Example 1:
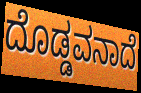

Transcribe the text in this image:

ದೊಡ್ಡವನಾದೆ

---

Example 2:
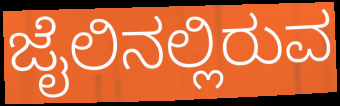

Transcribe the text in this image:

ಜೈಲಿನಲ್ಲಿರುವ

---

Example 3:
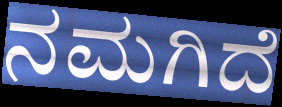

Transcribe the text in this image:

ನಮಗಿದೆ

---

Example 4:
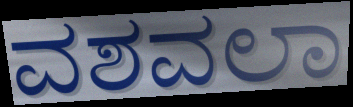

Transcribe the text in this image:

ವಶವಲಾ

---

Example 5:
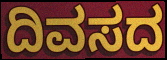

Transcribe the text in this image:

ದಿವಸದ